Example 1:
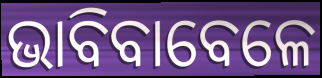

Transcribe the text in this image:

ଭାବିବାବେଳେ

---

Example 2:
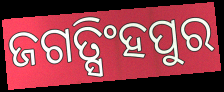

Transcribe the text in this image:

ଜଗତ୍ସିଂହପୁର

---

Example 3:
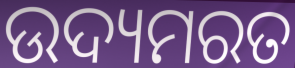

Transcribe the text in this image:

ଉଦ୍ୟମରତ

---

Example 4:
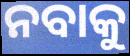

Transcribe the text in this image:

ନବାକୁ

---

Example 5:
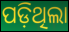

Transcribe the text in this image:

ପଡ଼ିଥିଲା